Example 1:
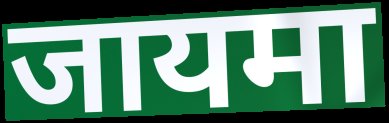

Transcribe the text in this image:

जायमा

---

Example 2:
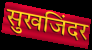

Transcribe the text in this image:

सुखजिंदर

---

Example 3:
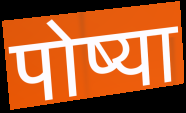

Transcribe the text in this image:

पोष्या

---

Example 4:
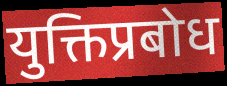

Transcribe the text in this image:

युक्तिप्रबोध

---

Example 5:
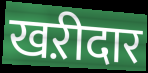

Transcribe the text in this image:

खऱीदार